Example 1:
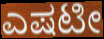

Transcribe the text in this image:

ಎಷಟೀ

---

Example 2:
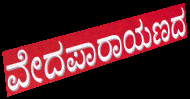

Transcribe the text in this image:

ವೇದಪಾರಾಯಣದ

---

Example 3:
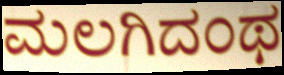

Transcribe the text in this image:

ಮಲಗಿದಂಥ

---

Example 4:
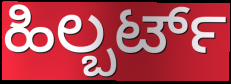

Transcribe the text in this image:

ಹಿಲ್ಬರ್ಟ್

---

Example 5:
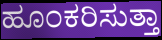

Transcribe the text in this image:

ಹೂಂಕರಿಸುತ್ತಾ